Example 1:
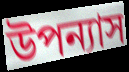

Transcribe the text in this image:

উপন্যাস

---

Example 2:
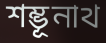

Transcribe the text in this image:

শম্ভূনাথ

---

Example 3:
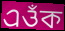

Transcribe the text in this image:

এওঁক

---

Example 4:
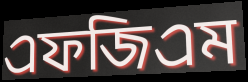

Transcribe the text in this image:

এফজিএম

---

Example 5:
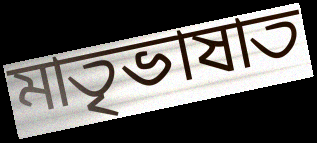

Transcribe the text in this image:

মাতৃভাষাত